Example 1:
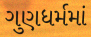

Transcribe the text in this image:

ગુણધર્મમાં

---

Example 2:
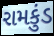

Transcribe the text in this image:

રામકુંડ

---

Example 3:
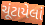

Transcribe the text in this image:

ચૂંટાયેલાં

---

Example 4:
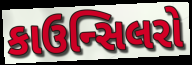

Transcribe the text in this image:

કાઉન્સિલરો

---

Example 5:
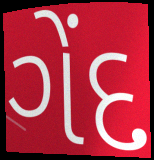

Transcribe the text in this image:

ગેંદ